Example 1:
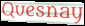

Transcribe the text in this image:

Quesnay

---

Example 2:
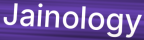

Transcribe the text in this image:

Jainology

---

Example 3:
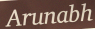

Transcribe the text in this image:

Arunabh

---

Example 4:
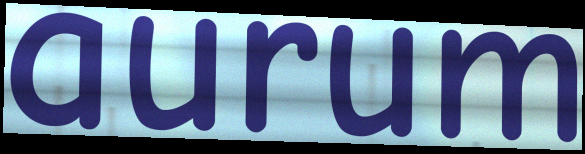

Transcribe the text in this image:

aurum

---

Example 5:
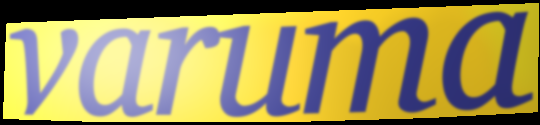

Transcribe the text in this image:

varuma